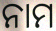
ନାମ